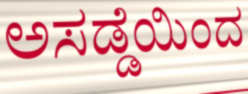
ಅಸಡ್ಡೆಯಿಂದ